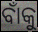
ବାଁକୁ